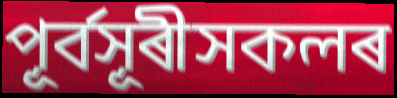
পূৰ্বসূৰীসকলৰ